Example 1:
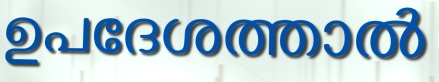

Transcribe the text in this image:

ഉപദേശത്താൽ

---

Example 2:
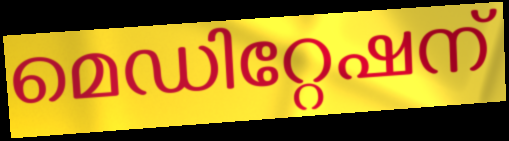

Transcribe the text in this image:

മെഡിറ്റേഷന്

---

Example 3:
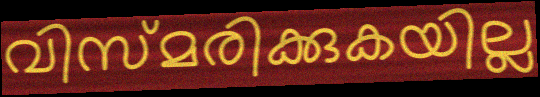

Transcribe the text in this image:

വിസ്മരിക്കുകയില്ല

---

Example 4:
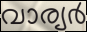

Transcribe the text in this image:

വാര്യർ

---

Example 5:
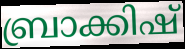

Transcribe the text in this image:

ബ്രാക്കിഷ്